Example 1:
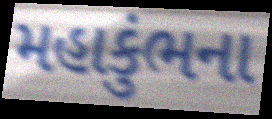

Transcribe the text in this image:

મહાકુંભના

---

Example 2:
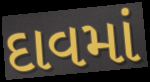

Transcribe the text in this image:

દાવમાં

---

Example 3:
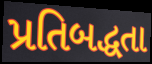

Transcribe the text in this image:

પ્રતિબદ્ધતા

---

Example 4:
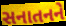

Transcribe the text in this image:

સનાતનને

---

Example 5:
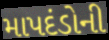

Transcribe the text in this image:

માપદંડોની